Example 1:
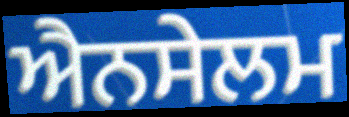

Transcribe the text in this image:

ਐਨਸੇਲਮ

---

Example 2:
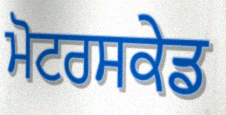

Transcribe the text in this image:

ਮੋਟਰਸਕੇਡ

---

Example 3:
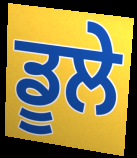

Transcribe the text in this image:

ਡੂਲੇ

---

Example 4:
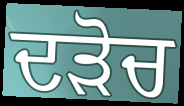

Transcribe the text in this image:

ਦੜੋਚ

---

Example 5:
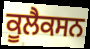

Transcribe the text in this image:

ਕੂਲੈਕਸਨ